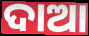
ଦାଆ